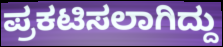
ಪ್ರಕಟಿಸಲಾಗಿದ್ದು